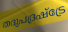
തദുപദ്രഷ്ട്രേ